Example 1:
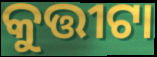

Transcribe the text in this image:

କୁତ୍ତୀଟା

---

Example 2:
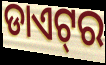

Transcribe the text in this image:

ଡାଏଟ୍‌ର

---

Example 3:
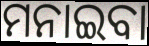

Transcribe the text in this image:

ମନାଇବା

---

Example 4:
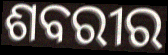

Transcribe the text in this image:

ଶବରୀର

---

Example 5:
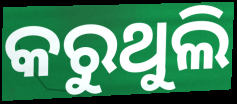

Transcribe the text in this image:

କରୁଥୁଲି